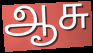
ஆசு